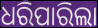
ଧରିପାରିଲା